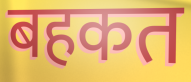
बहकत